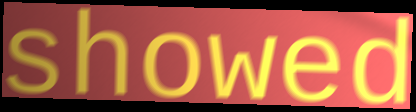
showed